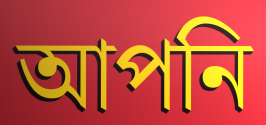
আপনি